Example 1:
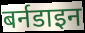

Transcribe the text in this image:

बर्नडाइन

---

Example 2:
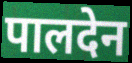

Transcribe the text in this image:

पालदेन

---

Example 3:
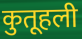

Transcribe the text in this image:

कुतूहली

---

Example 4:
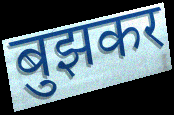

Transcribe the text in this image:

बुझकर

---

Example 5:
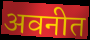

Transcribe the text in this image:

अवनीत